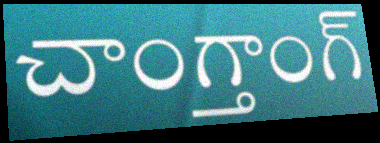
చాంగ్తాంగ్